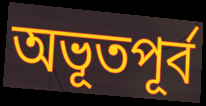
অভূতপূৰ্ব